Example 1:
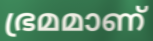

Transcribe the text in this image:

ഭ്രമമാണ്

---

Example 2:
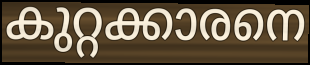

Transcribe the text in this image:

കുറ്റക്കാരനെ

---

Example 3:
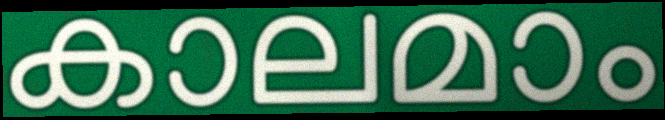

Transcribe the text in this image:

കാലമാം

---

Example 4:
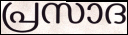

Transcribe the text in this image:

പ്രസാദ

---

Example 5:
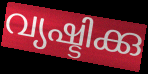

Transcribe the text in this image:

വ്യഷ്ടിക്കു